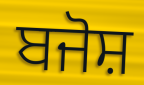
ਬਜੋਸ਼